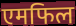
एमफिल